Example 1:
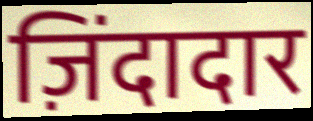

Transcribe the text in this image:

ज़िंदादार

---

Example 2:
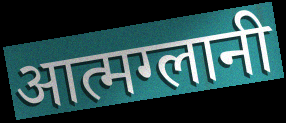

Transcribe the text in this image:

आत्मग्लानी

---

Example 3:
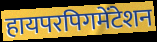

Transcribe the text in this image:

हायपरपिगमेंटेशन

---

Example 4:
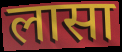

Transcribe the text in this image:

लासा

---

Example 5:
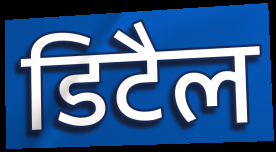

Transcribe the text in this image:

डिटैल